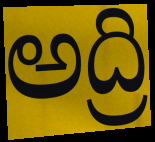
అద్రి